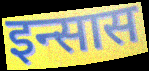
इन्सास